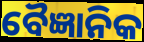
ବୈଜ୍ଞାନିକ